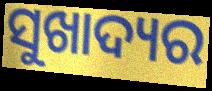
ସୁଖାଦ୍ୟର